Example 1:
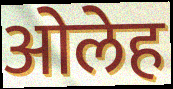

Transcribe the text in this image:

ओलेह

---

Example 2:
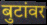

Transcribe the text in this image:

बुटांवर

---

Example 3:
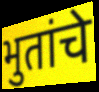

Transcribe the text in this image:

भुतांचे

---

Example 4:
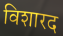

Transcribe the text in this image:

विशारद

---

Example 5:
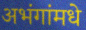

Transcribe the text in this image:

अभंगांमधे